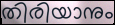
തിരിയാനും